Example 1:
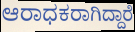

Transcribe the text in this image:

ಆರಾಧಕರಾಗಿದ್ದಾರೆ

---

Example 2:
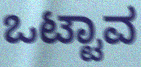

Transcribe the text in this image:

ಒಟ್ಟಾವ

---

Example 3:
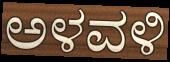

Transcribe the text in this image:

ಅಳವಳಿ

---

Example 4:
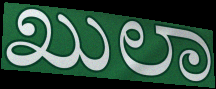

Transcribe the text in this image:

ಖುಲಾ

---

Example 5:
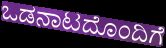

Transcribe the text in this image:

ಒಡನಾಟದೊಂದಿಗೆ